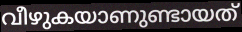
വീഴുകയാണുണ്ടായത്